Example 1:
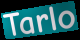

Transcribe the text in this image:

Tarlo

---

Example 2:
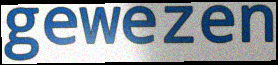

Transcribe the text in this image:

gewezen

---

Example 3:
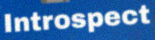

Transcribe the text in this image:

Introspect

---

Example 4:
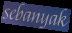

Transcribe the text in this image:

sebanyak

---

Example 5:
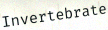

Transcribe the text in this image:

Invertebrate